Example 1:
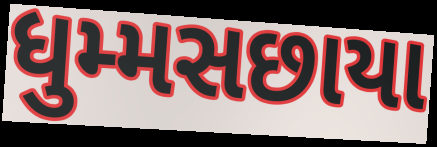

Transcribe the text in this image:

ધુમ્મસછાયા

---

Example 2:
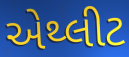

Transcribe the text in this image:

એથ્લીટ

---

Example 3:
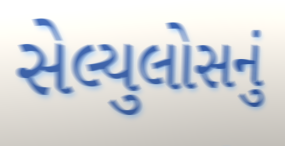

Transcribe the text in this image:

સેલ્યુલોસનું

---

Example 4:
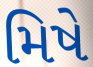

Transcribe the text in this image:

મિષે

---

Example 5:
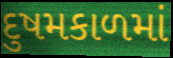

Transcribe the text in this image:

દુષમકાળમાં